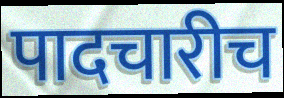
पादचारीच